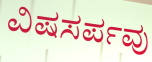
ವಿಷಸರ್ಪವು